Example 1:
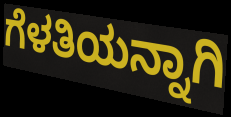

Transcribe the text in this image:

ಗೆಳತಿಯನ್ನಾಗಿ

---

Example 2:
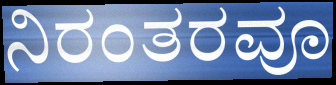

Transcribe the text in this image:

ನಿರಂತರವೂ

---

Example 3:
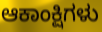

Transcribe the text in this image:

ಆಕಾಂಕ್ಷಿಗಳು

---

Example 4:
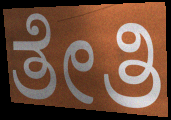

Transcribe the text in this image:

ತೇತಿ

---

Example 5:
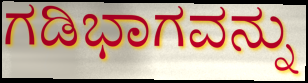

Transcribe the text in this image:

ಗಡಿಭಾಗವನ್ನು